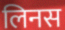
लिनस